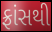
ફ્રાંસથી